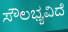
ಸೌಲಭ್ಯವಿದೆ